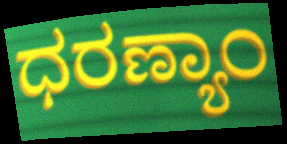
ಧರಣ್ಯಾಂ